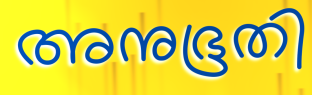
അനുഭൂതി